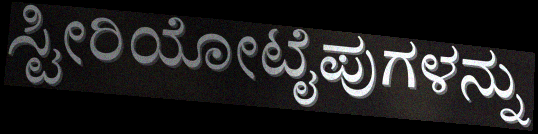
ಸ್ಟೀರಿಯೋಟೈಪುಗಳನ್ನು